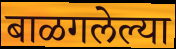
बाळगलेल्या